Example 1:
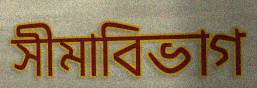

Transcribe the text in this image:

সীমাবিভাগ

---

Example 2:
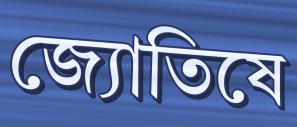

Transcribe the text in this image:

জ্যোতিষে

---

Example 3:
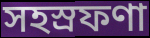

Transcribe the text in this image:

সহস্রফণা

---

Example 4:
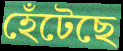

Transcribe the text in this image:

হেঁটেছে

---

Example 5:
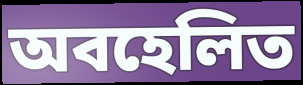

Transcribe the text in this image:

অবহেলিত